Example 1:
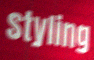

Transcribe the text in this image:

styling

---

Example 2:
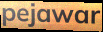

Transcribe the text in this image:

pejawar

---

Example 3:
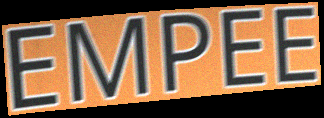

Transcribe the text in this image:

EMPEE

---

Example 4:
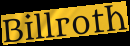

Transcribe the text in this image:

Billroth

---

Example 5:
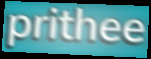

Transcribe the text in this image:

prithee